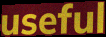
useful